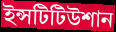
ইন্সটিটিউশান